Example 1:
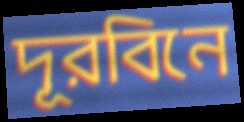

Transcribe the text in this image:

দূরবিনে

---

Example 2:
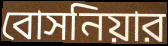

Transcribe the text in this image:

বোসনিয়ার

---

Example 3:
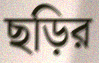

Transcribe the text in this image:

ছড়ির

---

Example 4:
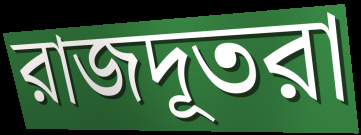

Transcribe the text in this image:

রাজদূতরা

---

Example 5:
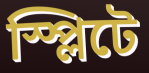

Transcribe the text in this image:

স্প্লিটে